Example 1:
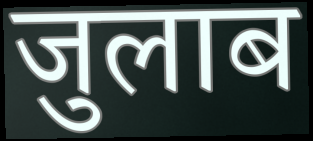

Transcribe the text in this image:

जुलाब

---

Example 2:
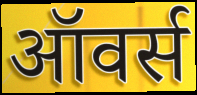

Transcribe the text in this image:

ऑवर्स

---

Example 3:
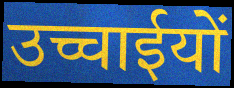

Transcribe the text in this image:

उच्चाईयों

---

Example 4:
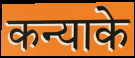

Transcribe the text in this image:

कन्याके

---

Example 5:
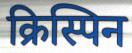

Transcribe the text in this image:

क्रिस्पिन